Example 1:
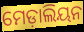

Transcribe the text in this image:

ମେଡ଼ାଲିୟନ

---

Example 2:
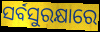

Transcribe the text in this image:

ସର୍ବସୁରକ୍ଷାରେ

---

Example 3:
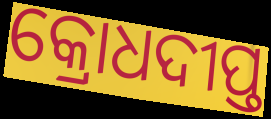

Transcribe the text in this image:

କ୍ରୋଧଦୀପ୍ତ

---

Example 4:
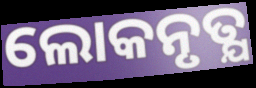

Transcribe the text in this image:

ଲୋକନୃତ୍ଯ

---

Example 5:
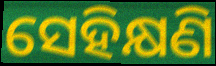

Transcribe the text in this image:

ସେହିକ୍ଷଣି